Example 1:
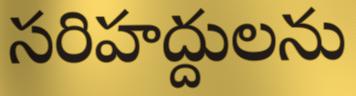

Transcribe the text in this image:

సరిహద్దులను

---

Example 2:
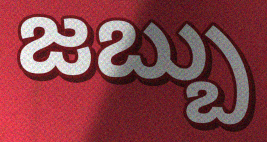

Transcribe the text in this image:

జబ్బు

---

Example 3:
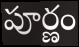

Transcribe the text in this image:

పూర్ణం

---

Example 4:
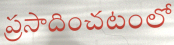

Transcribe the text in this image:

ప్రసాదించటంలో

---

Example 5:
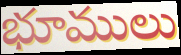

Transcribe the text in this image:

భూములు